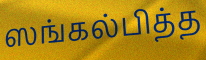
ஸங்கல்பித்த